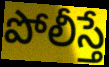
పోలీస్తే